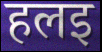
हलइ